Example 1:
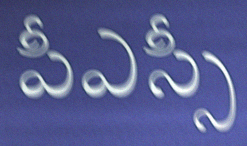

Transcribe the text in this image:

పీఎస్సీ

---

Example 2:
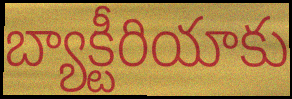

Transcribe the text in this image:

బ్యాక్టీరియాకు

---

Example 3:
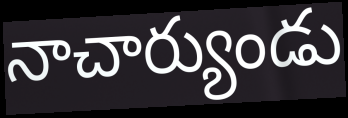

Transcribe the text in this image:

నాచార్యుండు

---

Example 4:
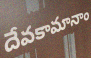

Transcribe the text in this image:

దేవకామానాం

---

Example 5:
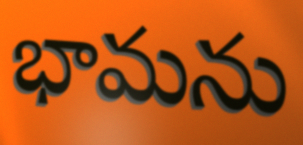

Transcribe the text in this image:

భామను